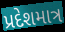
પ્રદેશમાત્ર